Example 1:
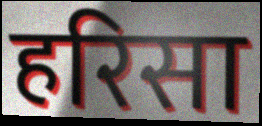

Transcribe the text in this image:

हरिसा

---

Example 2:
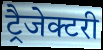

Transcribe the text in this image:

ट्रैजेक्टरी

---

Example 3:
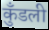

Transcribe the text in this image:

कुँडली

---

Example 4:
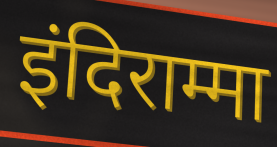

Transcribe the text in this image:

इंदिराम्मा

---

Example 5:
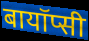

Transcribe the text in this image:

बायॉप्सी